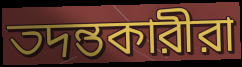
তদন্তকারীরা